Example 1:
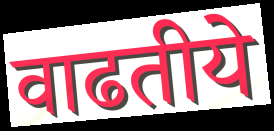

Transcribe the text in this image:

वाढतीये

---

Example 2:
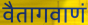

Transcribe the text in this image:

वैतागवाणं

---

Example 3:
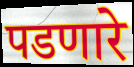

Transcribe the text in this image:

पडणारे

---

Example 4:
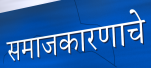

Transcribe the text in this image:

समाजकारणाचे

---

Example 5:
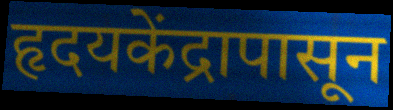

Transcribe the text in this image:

हृदयकेंद्रापासून